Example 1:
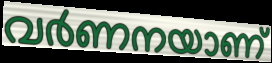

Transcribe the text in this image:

വർണനയാണ്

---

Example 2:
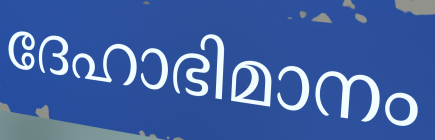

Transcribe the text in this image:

ദേഹാഭിമാനം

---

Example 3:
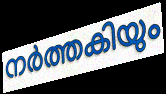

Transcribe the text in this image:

നർത്തകിയും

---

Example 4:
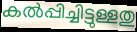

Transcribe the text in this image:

കൽപ്പിച്ചിട്ടുള്ളതു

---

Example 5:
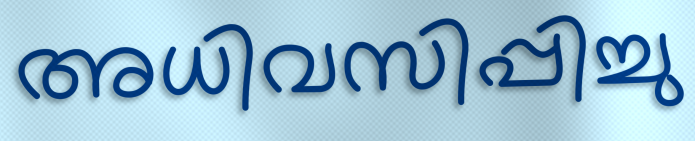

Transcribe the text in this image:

അധിവസിപ്പിച്ചു